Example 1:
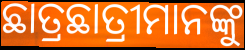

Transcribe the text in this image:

ଛାତ୍ରଛାତ୍ରୀମାନଙ୍କୁ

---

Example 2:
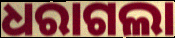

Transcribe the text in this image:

ଧରାଗଲା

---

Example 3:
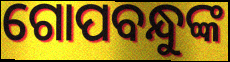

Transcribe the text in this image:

ଗୋପବନ୍ଧୁଙ୍କ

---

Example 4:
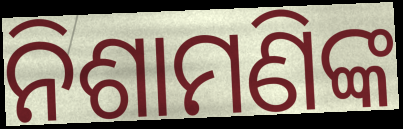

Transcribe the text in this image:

ନିଶାମଣିଙ୍କ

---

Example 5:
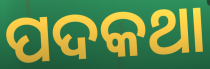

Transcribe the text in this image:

ପଦକଥା